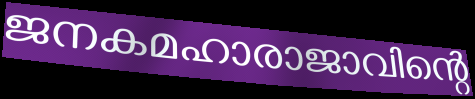
ജനകമഹാരാജാവിന്റെ